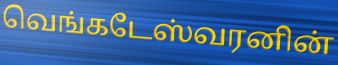
வெங்கடேஸ்வரனின்